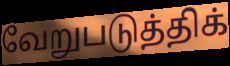
வேறுபடுத்திக்